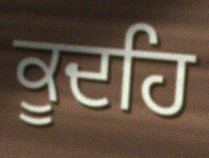
ਕੂਦਹਿ